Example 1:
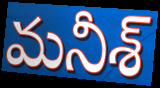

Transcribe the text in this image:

మనీశ్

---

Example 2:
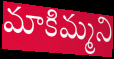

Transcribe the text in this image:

మాకిమ్మని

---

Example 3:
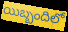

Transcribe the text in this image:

యిబ్బందిలో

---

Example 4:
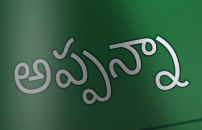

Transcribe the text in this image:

అప్పన్నా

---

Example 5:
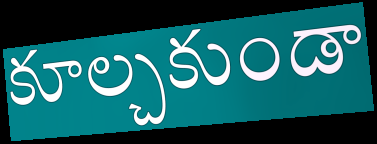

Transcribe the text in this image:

కూల్చకుండా